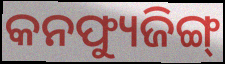
କନଫ୍ୟୁଜିଙ୍ଗ୍